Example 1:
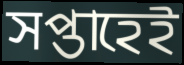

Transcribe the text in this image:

সপ্তাহেই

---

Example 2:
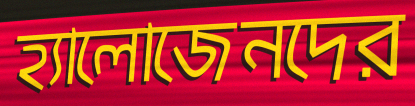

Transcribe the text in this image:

হ্যালোজেনদের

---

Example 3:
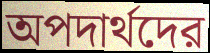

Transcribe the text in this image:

অপদার্থদের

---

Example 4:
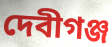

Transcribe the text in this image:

দেবীগঞ্জ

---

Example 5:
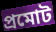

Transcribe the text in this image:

প্রমোট